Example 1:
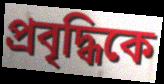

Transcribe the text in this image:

প্রবৃদ্ধিকে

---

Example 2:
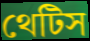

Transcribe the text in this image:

থেটিস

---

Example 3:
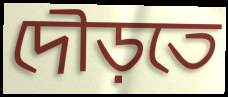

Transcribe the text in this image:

দৌড়তে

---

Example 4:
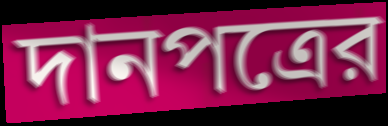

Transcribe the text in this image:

দানপত্রের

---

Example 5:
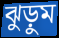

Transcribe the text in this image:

ঝুড়ুম